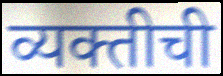
व्यक्तीची